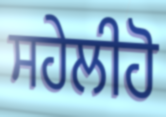
ਸਹੇਲੀਹੋ